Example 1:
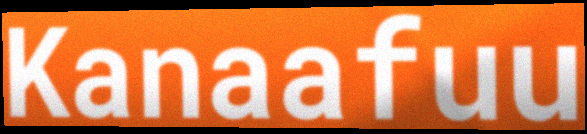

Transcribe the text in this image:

Kanaafuu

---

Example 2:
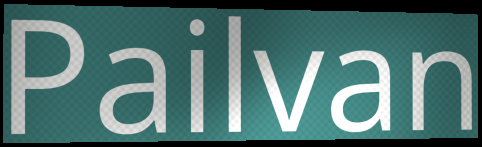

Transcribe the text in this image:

Pailvan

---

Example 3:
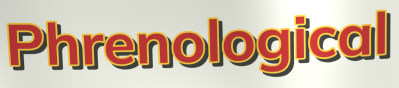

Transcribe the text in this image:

Phrenological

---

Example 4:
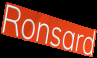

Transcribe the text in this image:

Ronsard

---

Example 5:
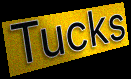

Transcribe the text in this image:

Tucks